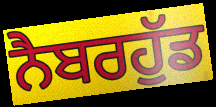
ਨੈਬਰਹੁੱਡ